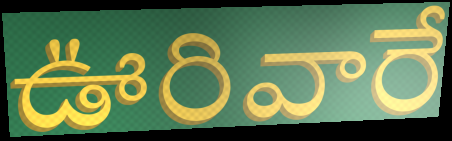
ఊరివారే